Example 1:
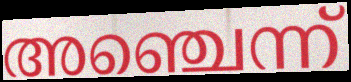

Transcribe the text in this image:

അഞ്ചെന്ന്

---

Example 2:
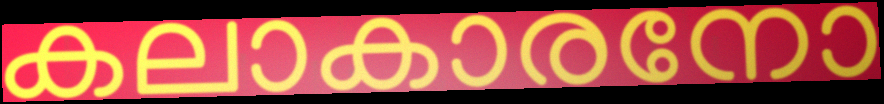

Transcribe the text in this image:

കലാകാരനോ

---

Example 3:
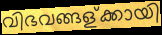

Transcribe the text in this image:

വിഭവങ്ങള്ക്കായി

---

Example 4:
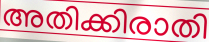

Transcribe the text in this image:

അതിക്കിരാതി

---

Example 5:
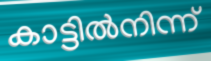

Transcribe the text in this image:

കാട്ടിൽനിന്ന്